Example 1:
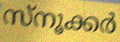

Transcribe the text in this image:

സ്നൂക്കർ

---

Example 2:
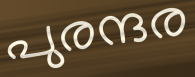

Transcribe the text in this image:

പുരന്ദര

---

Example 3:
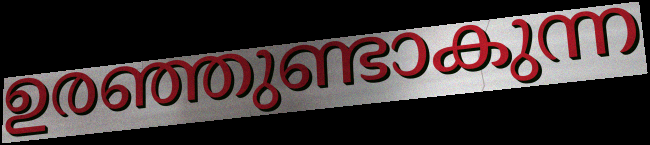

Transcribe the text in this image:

ഉരഞ്ഞുണ്ടാകുന്ന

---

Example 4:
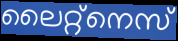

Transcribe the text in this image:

ലൈറ്റ്നെസ്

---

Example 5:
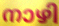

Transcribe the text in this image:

നാഴി